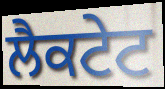
ਲੈਕਟੇਟ